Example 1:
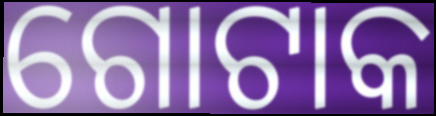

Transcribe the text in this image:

ଗୋଟାକ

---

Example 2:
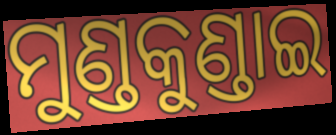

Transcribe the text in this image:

ମୁଣ୍ଡକୁଣ୍ଡାଇ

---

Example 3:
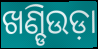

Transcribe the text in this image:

ଖଣ୍ଡିଉଡ଼ା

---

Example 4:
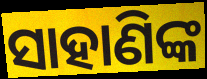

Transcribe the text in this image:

ସାହାଣିଙ୍କ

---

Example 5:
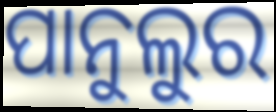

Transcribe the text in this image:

ପାନୁଲୁର